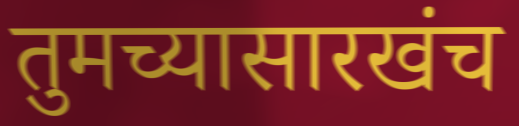
तुमच्यासारखंच